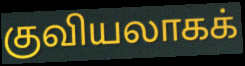
குவியலாகக்